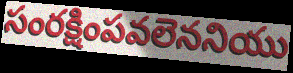
సంరక్షింపవలెననియు